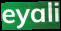
eyali